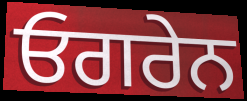
ਓਗਰੇਨ